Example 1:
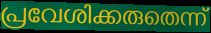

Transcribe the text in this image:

പ്രവേശിക്കരുതെന്ന്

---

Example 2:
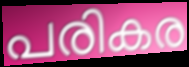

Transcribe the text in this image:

പരികര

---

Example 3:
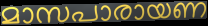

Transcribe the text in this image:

മാസപാരായണ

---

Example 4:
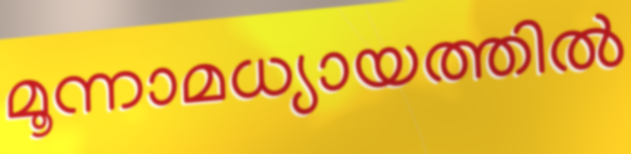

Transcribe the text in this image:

മൂന്നാമധ്യായത്തിൽ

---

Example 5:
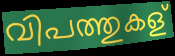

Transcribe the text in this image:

വിപത്തുകള്